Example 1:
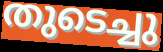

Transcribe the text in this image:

തുടെച്ചു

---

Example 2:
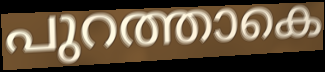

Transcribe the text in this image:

പുറത്താകെ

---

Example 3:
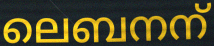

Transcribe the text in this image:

ലെബനന്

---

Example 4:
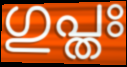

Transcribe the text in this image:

ഗുപ്തഃ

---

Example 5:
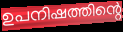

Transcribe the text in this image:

ഉപനിഷത്തിന്റെ